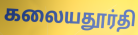
கலையதூர்தி